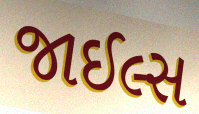
જાઈલ્સ